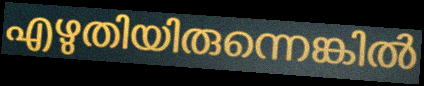
എഴുതിയിരുന്നെങ്കിൽ